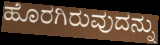
ಹೊರಗಿರುವುದನ್ನು